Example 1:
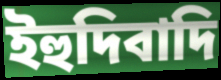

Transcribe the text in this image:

ইহুদিবাদি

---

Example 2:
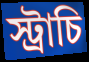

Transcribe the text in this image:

স্ট্রাচি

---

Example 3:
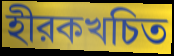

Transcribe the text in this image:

হীরকখচিত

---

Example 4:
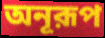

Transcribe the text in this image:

অনূরূপ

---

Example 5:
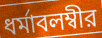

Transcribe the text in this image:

ধর্মাবলম্বীর